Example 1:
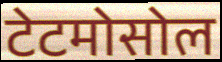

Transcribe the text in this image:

टेटमोसोल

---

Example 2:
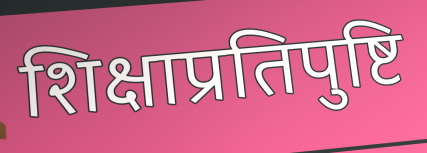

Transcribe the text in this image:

शिक्षाप्रतिपुष्टि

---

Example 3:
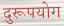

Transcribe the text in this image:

दुरूपयोग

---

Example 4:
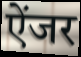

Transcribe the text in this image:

ऐंजर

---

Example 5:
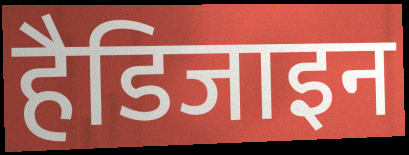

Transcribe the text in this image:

हैडिजाइन